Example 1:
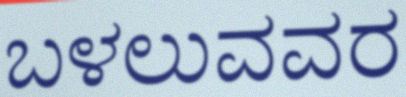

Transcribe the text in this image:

ಬಳಲುವವರ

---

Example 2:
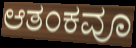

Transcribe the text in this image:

ಆತಂಕವೂ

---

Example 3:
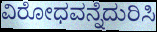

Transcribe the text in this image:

ವಿರೋಧವನ್ನೆದುರಿಸಿ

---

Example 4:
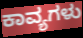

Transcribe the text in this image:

ಕಾವ್ಯಗಳು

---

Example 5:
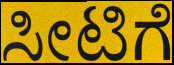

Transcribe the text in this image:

ಸೀಟಿಗೆ